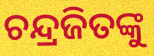
ଚନ୍ଦ୍ରଜିତଙ୍କୁ